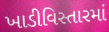
ખાડીવિસ્તારમાં